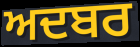
ਅਦਬਰ